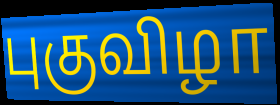
புகுவிழா